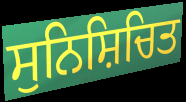
ਸੁਨਿਸ਼ਿਚਿਤ